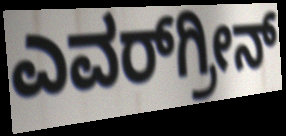
ಎವರ್‌ಗ್ರೀನ್